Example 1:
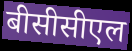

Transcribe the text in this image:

बीसीसीएल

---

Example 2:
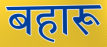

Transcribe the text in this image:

बहारू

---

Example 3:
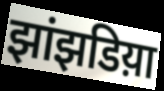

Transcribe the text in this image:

झांझडिय़ा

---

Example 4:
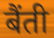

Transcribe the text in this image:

बैंती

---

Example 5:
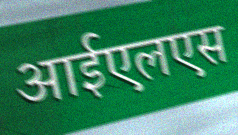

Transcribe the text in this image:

आईएलएस